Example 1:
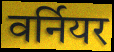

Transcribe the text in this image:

वर्नियर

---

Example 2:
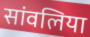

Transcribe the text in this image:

सांवलिया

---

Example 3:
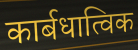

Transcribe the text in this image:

कार्बधात्विक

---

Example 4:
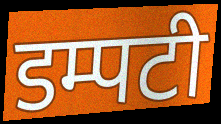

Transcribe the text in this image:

डम्पटी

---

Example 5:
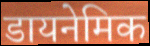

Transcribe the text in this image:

डायनेमिक